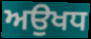
ਅਉਖਧ